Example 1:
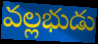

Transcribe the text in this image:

వల్లభుడు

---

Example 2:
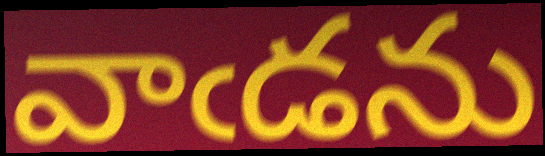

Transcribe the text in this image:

వాఁడను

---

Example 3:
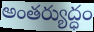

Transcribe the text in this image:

అంతర్యుద్ధం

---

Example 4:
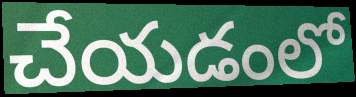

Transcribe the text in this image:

చేయడంలో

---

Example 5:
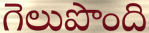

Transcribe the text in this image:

గెలుపొంది